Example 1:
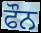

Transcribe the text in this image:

ਫੌਨ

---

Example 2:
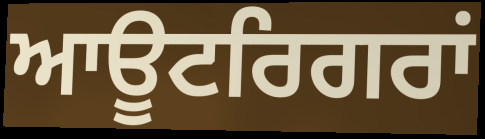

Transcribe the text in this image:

ਆਊਟਰਿਗਰਾਂ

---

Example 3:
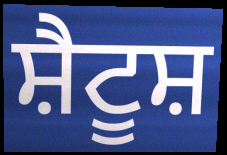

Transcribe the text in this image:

ਸ਼ੈਟੂਸ਼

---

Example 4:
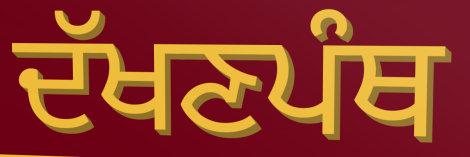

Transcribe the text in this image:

ਦੱਖਣਪੰਥ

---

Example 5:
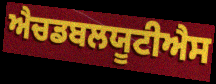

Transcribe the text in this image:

ਐਚਡਬਲਯੂਟੀਐਸ